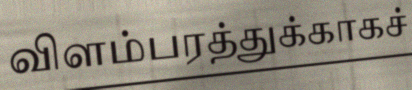
விளம்பரத்துக்காகச்